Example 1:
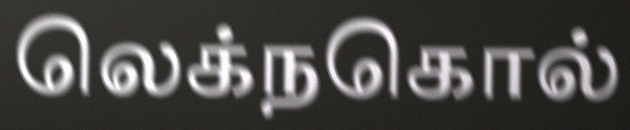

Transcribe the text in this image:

லெக்நகொல்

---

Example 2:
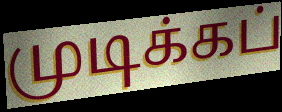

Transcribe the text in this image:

முடிக்கப்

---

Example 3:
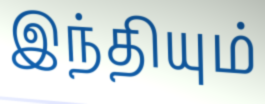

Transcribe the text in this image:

இந்தியும்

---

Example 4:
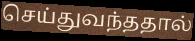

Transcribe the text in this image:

செய்துவந்ததால்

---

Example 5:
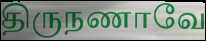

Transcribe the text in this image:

திருநணாவே